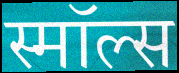
स्मॉल्स